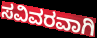
ಸವಿವರವಾಗಿ